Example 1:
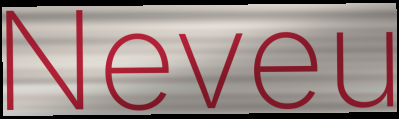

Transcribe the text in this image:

Neveu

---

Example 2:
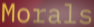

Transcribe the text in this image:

Morals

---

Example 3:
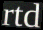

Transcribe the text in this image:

rtd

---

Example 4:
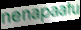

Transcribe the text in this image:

nenapaatu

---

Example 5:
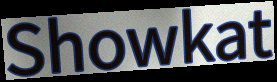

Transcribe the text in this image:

Showkat